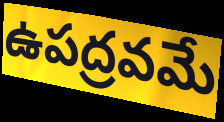
ఉపద్రవమే